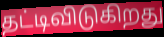
தட்டிவிடுகிறது